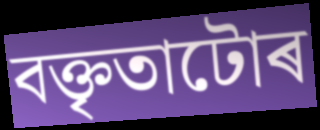
বক্তৃতাটোৰ